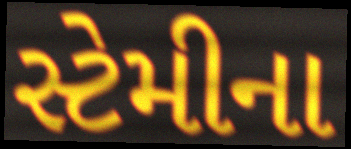
સ્ટેમીના